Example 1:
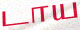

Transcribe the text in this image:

டாய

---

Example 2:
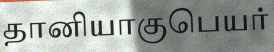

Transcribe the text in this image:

தானியாகுபெயர்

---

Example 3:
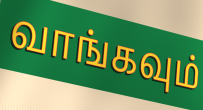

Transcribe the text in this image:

வாங்கவும்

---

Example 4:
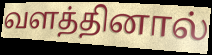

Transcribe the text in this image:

வளத்தினால்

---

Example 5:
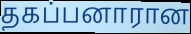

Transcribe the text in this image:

தகப்பனாரான